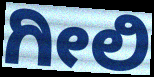
ಗೀಲಿ